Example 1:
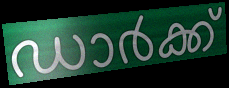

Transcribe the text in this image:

ഡാർക്ക്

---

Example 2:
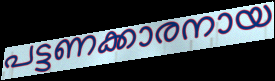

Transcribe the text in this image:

പട്ടണക്കാരനായ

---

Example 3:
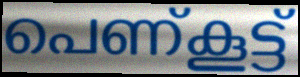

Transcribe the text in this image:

പെണ്കൂട്ട്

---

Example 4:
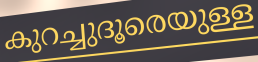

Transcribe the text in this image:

കുറച്ചുദൂരെയുള്ള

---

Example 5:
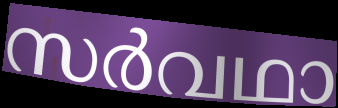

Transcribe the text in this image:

സർവഥാ